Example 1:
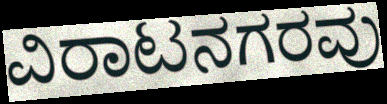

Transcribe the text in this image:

ವಿರಾಟನಗರವು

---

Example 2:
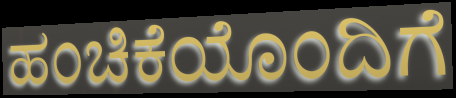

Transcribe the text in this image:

ಹಂಚಿಕೆಯೊಂದಿಗೆ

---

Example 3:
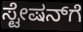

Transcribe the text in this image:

ಸ್ಟೇಷನ್‌ಗೆ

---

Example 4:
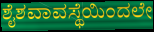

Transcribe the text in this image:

ಶೈಶವಾವಸ್ಥೆಯಿಂದಲೇ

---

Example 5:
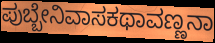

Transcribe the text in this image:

ಪುಬ್ಬೇನಿವಾಸಕಥಾವಣ್ಣನಾ